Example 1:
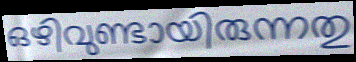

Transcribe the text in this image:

ഒഴിവുണ്ടായിരുന്നതു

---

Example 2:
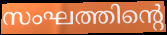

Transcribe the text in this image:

സംഘത്തിന്റെ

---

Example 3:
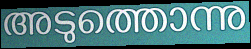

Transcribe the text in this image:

അടുത്തൊന്നു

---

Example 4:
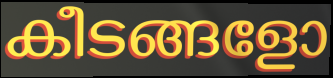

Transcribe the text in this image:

കീടങ്ങളോ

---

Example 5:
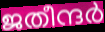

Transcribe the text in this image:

ജതീന്ദർ